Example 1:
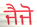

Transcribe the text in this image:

ਜੈਜੋ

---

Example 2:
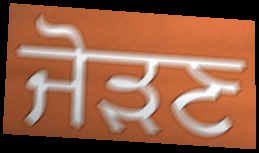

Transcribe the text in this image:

ਜੋੜਣ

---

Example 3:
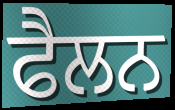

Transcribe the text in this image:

ਫੈਲਨ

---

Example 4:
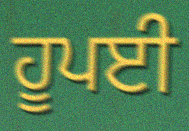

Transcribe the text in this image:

ਹੂਪਈ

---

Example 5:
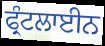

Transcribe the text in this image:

ਫ੍ਰੰਟਲਾਈਨ